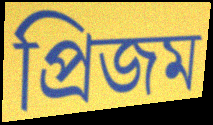
প্রিজম